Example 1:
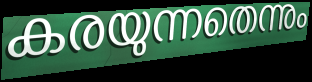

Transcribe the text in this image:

കരയുന്നതെന്നും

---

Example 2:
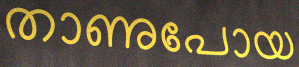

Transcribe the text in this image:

താണുപോയ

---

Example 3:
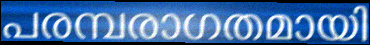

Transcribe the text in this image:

പരമ്പരാഗതമായി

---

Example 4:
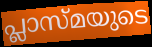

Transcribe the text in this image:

പ്ലാസ്മയുടെ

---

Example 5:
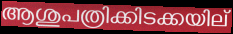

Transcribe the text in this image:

ആശുപത്രിക്കിടക്കയില്